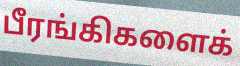
பீரங்கிகளைக்